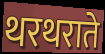
थरथराते